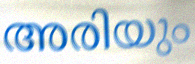
അരിയും